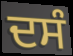
ਦਸੰ